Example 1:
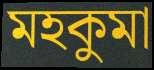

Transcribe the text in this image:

মহকুমা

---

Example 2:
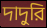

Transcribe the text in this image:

দাদুরি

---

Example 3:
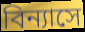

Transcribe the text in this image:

বিন্যাসে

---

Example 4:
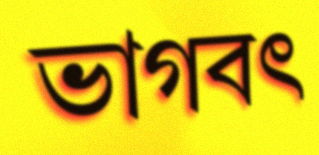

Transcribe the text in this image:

ভাগবৎ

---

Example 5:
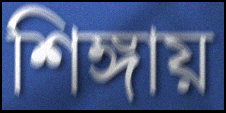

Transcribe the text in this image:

শিঙ্গায়